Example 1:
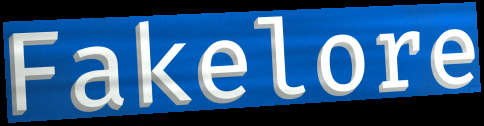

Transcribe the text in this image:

Fakelore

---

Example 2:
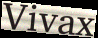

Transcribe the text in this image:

Vivax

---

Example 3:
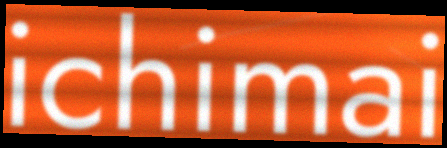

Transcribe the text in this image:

ichimai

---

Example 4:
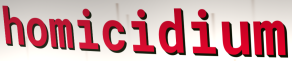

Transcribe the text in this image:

homicidium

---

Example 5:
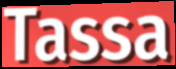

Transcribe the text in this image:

Tassa